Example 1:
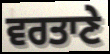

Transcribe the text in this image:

ਵਰਤਾਣੇ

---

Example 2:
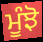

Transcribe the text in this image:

ਮੂੰਝੋ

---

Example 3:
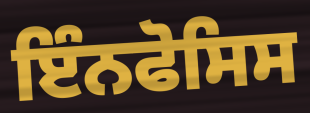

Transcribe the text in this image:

ਇੰਨਫੋਸਿਸ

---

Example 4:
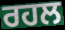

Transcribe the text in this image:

ਰਹਲ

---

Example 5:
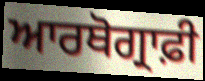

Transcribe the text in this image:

ਆਰਥੋਗ੍ਰਾਫ਼ੀ